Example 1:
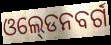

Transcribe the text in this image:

ଓଲ୍‍ଡେନବର୍ଗ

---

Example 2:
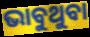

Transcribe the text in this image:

ଭାବୁଥୁବା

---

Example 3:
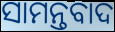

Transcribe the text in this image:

ସାମନ୍ତବାଦ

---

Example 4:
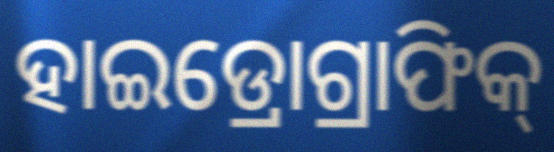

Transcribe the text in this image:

ହାଇଡ୍ରୋଗ୍ରାଫିକ୍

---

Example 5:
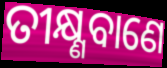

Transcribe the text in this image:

ତୀକ୍ଷ୍ଣବାଣେ